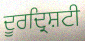
ਦੂਰਦ੍ਰਿਸ਼ਟੀ